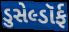
ડુસેલ્ડૉર્ફ